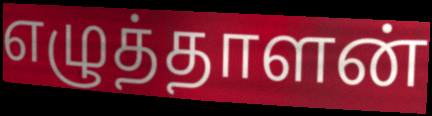
எழுத்தாளன்